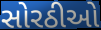
સોરઠીઓ